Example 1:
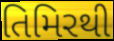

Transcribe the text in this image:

તિમિરથી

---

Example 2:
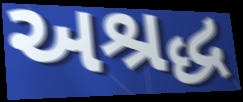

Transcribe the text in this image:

અશ્રદ્ધ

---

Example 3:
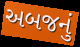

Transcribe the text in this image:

અબજનું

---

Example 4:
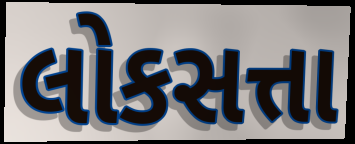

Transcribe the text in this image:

લોકસત્તા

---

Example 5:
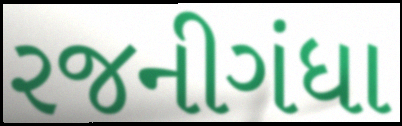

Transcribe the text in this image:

રજનીગંધા